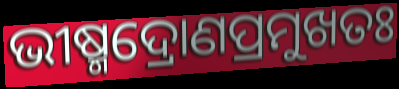
ଭୀଷ୍ମଦ୍ରୋଣପ୍ରମୁଖତଃ